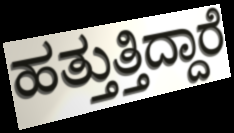
ಹತ್ತುತ್ತಿದ್ದಾರೆ